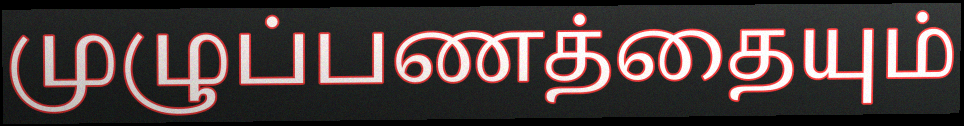
முழுப்பணத்தையும்